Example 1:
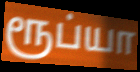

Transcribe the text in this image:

ரூப்யா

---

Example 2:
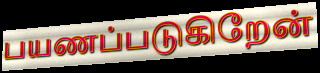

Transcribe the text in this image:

பயணப்படுகிறேன்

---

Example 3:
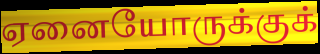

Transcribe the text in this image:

ஏனையோருக்குக்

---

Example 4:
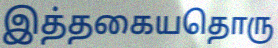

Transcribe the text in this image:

இத்தகையதொரு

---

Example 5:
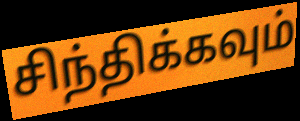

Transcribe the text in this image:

சிந்திக்கவும்